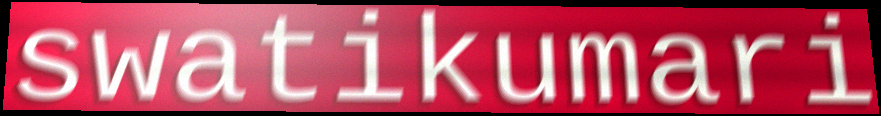
swatikumari